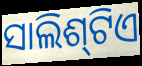
ସାଲିଶ୍‌ଟିଏ